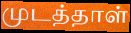
முடத்தாள்